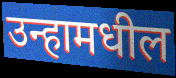
उन्हामधील